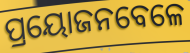
ପ୍ରୟୋଜନବେଳେ